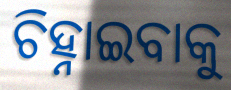
ଚିହ୍ନାଇବାକୁ